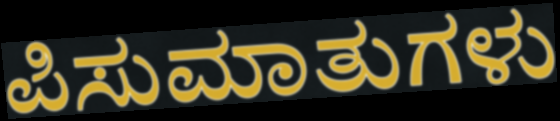
ಪಿಸುಮಾತುಗಳು